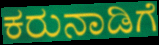
ಕರುನಾಡಿಗೆ